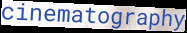
cinematography